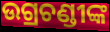
ଉଗ୍ରଚଣ୍ଡୀଙ୍କ